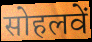
सोहलवें